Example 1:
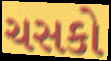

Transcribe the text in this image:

ચસકો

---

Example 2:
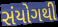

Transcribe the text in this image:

સંયોગથી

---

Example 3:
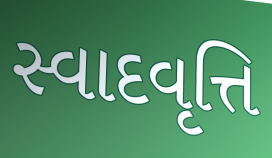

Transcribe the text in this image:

સ્વાદવૃત્તિ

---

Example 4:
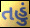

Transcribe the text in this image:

તહું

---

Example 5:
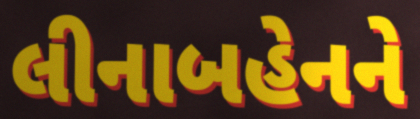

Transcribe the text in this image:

લીનાબહેનને